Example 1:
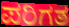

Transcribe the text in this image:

ಪರಿಗತ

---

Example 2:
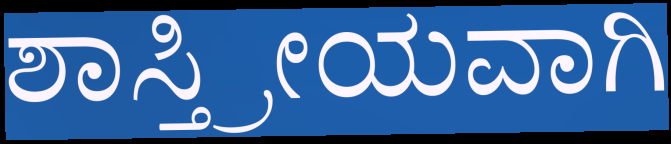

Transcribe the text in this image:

ಶಾಸ್ತ್ರೀಯವಾಗಿ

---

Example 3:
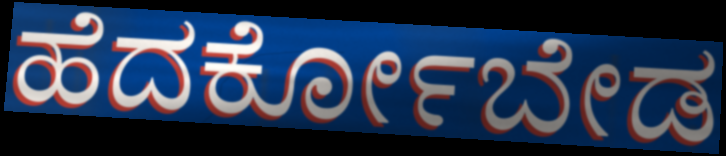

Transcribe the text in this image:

ಹೆದರ್ಕೋಬೇಡ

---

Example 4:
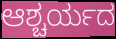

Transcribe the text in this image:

ಆಶ್ಚರ್ಯದ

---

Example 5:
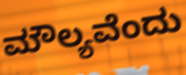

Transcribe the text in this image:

ಮೌಲ್ಯವೆಂದು